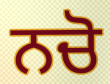
ਨਚੋ